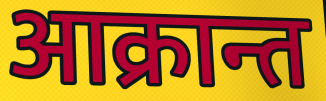
आक्रान्त